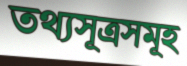
তথ্যসূত্ৰসমূহ